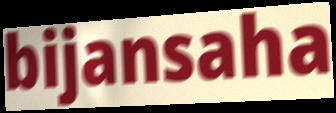
bijansaha